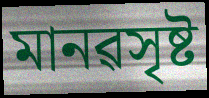
মানৱসৃষ্ট